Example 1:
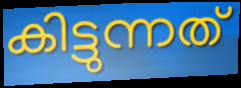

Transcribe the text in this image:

കിട്ടുന്നത്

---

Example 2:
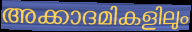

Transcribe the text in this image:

അക്കാദമികളിലും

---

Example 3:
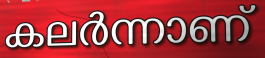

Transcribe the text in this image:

കലർന്നാണ്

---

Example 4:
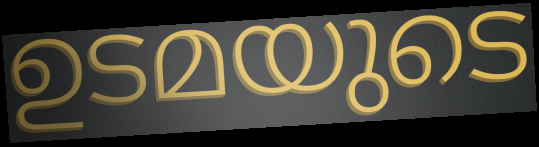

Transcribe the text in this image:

ഉടമയുടെ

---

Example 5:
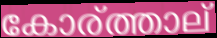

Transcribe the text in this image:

കോര്ത്താല്